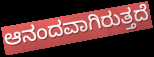
ಆನಂದವಾಗಿರುತ್ತದೆ